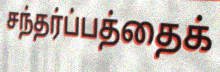
சந்தர்ப்பத்தைக்